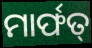
ମାର୍ଫତ୍